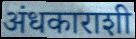
अंधकाराशी